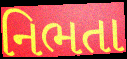
નિભતા